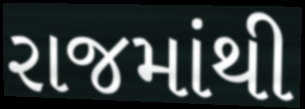
રાજમાંથી